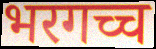
भरगच्च